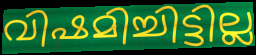
വിഷമിച്ചിട്ടില്ല